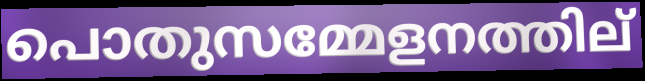
പൊതുസമ്മേളനത്തില്